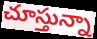
చూస్తున్నా